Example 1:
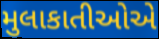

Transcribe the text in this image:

મુલાકાતીઓએ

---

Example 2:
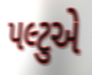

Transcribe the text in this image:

પલ્ટુએ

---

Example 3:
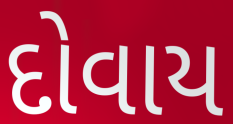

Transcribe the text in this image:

દોવાય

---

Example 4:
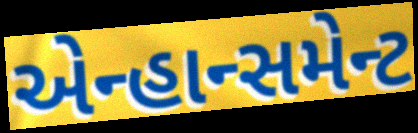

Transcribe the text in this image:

એન્હાન્સમેન્ટ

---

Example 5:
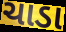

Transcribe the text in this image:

ચાડા